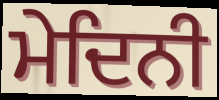
ਮੇਦਿਨੀ